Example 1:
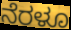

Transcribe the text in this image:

ನೆರಳೂ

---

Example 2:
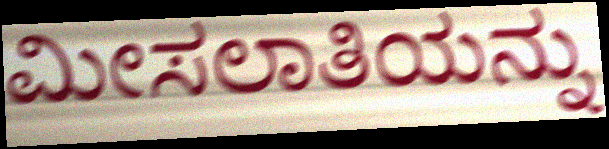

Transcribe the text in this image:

ಮೀಸಲಾತಿಯನ್ನು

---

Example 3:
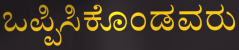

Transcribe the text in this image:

ಒಪ್ಪಿಸಿಕೊಂಡವರು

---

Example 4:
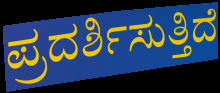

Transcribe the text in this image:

ಪ್ರದರ್ಶಿಸುತ್ತಿದೆ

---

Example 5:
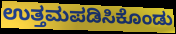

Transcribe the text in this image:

ಉತ್ತಮಪಡಿಸಿಕೊಂಡು